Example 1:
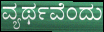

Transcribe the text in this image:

ವ್ಯರ್ಥವೆಂದು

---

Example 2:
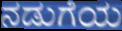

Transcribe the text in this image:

ನಡುಗೆಯ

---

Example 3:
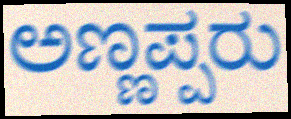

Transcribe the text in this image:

ಅಣ್ಣಪ್ಪರು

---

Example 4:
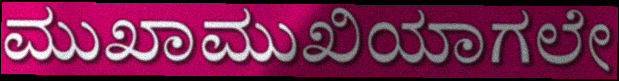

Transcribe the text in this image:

ಮುಖಾಮುಖಿಯಾಗಲೇ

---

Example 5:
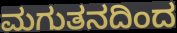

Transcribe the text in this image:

ಮಗುತನದಿಂದ